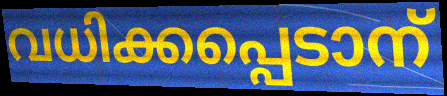
വധിക്കപ്പെടാന്